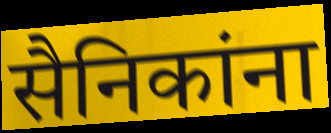
सैनिकांना